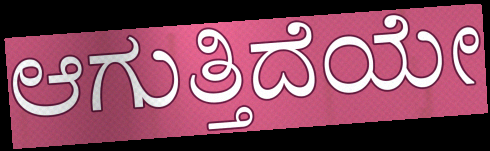
ಆಗುತ್ತಿದೆಯೇ